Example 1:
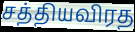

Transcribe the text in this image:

சத்தியவிரத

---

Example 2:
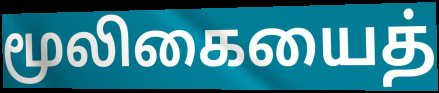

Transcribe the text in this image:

மூலிகையைத்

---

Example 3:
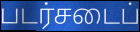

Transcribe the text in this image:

படர்சடைப்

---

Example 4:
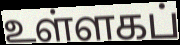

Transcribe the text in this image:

உள்ளகப்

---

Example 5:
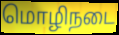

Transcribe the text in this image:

மொழிநடை